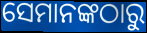
ସେମାନଙ୍କଠାରୁ